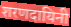
शरणदायिनी